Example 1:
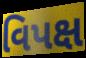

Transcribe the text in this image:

વિપક્ષ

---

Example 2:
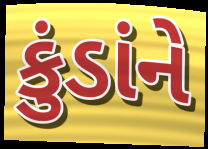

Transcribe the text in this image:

કુંડાંને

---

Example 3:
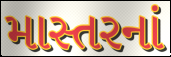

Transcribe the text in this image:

માસ્તરનાં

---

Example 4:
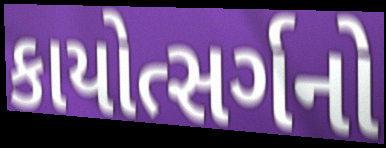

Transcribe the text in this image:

કાયોત્સર્ગનો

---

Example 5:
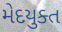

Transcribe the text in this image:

મેદયુક્ત